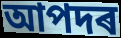
আপদৰ